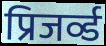
प्रिजर्व्ड